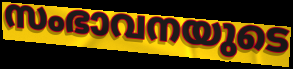
സംഭാവനയുടെ